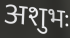
अशुभः